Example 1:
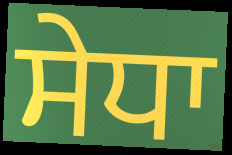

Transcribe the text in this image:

ਸੇਧਾ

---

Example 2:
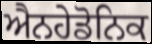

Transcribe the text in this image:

ਐਨਹੇਡੋਨਿਕ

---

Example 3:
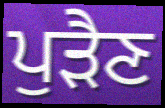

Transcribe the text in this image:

ਪੁੜੈਣ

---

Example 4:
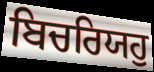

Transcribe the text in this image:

ਬਿਚਰਿਯਹੁ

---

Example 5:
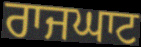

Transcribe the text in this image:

ਰਾਜਘਾਟ